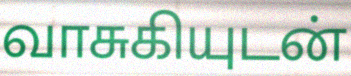
வாசுகியுடன்